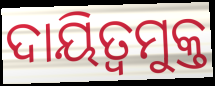
ଦାୟିତ୍ବମୁକ୍ତ